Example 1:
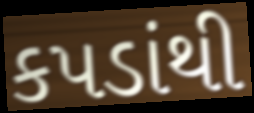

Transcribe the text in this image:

કપડાંથી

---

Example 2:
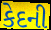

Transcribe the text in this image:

કેદની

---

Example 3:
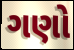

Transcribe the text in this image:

ગણો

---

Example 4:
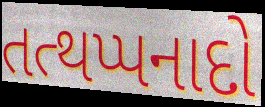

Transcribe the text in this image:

તત્થપ્પનાદો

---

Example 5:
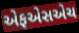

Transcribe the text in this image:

એફએસએચ